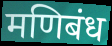
मणिबंध